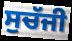
ਸੁਚੱਜੀ